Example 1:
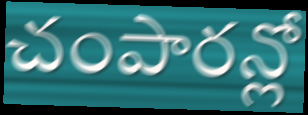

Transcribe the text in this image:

చంపారన్లో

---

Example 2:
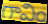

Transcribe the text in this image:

గావిం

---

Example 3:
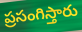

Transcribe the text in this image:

ప్రసంగిస్తారు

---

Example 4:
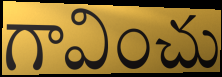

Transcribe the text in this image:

గావించు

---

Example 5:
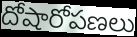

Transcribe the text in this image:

దోషారోపణలు